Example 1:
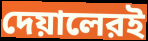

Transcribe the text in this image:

দেয়ালেরই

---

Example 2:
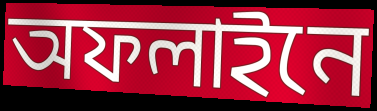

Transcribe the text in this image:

অফলাইনে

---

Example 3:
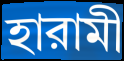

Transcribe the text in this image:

হারামী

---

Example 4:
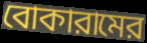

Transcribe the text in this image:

বোকারামের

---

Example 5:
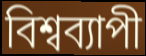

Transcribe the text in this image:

বিশ্বব্যাপী